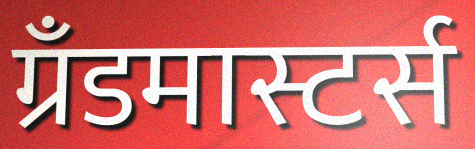
ग्रँडमास्टर्स